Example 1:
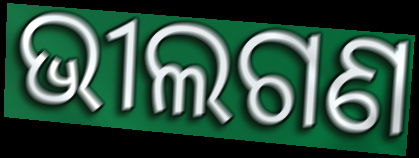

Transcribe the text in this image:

ଭୀଲଗଣ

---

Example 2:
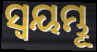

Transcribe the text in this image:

ସ୍ଵୟମ୍ଭୂ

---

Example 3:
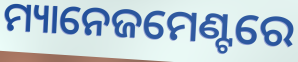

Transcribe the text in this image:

ମ୍ୟାନେଜମେଣ୍ଟରେ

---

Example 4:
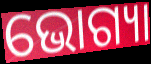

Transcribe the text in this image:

ଭୋଗ୍ୟା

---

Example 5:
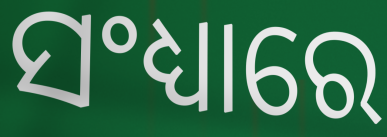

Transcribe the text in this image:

ସଂଧ୍ଯାରେ